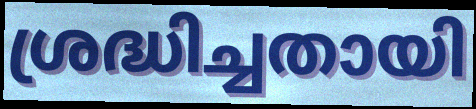
ശ്രദ്ധിച്ചതായി